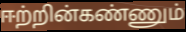
ஈற்றின்கண்ணும்